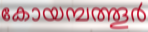
കോയമ്പത്തൂർ